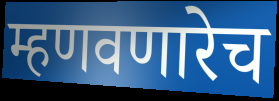
म्हणवणारेच